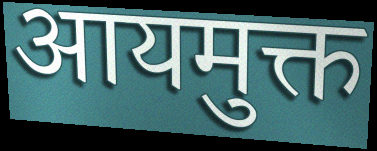
आयमुक्त